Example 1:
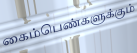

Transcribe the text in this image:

கைம்பெண்களுக்கும்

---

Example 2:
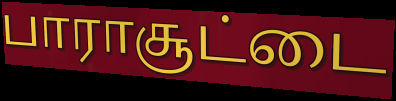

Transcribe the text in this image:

பாராசூட்டை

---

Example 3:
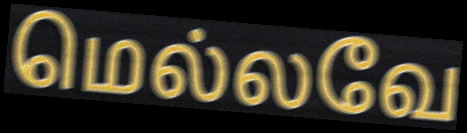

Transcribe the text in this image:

மெல்லவே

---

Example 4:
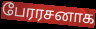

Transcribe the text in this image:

பேரரசனாக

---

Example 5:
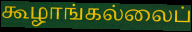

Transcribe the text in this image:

கூழாங்கல்லைப்